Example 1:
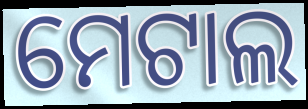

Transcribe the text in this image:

ମେଟାଲ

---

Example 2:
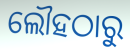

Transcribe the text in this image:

ଲୌହଠାରୁ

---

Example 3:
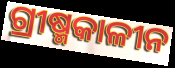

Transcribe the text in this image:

ଗ୍ରୀଷ୍ମକାଳୀନ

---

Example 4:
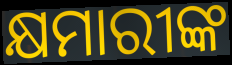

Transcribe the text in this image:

କ୍ଷମାରୀଙ୍କ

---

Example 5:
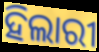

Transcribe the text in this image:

ହିଲାରୀ